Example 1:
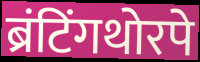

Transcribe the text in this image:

ब्रंटिंगथोरपे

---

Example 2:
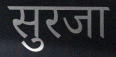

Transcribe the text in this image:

सुरजा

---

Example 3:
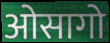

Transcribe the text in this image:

ओसागो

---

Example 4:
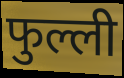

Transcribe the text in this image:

फुल्ली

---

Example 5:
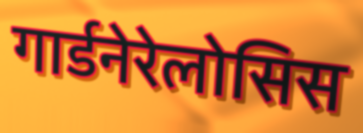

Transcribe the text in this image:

गार्डनेरेलोसिस